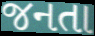
જનતા